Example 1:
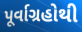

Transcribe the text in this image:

પૂર્વાગ્રહોથી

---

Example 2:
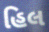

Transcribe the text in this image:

હિલ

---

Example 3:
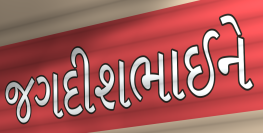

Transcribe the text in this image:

જગદીશભાઈને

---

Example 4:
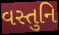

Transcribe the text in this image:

વસ્તુનિ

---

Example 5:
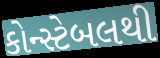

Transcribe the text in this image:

કોન્સ્ટેબલથી